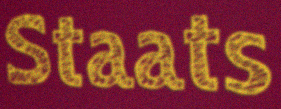
Staats